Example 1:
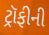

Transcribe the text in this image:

ટ્રૉફીની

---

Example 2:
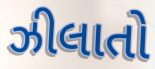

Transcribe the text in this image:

ઝીલાતો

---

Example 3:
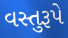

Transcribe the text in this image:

વસ્તુરૂપે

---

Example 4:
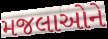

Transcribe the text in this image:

મજલાઓને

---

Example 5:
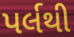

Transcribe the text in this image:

પર્લથી